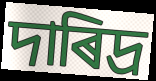
দাৰিদ্ৰ